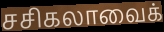
சசிகலாவைக்